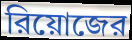
রিয়োজের